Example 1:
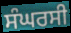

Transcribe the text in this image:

ਸੰਘਰਸੀ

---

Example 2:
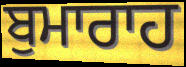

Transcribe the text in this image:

ਬੁਮਾਰਾਹ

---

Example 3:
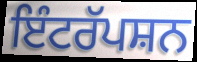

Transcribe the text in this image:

ਇੰਟਰੱਪਸ਼ਨ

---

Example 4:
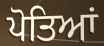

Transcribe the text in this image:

ਪੋਤਿਆਂ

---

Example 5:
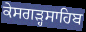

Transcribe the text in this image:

ਕੇਸਗੜ੍ਹਸਾਹਿਬ